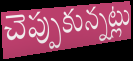
చెప్పుకున్నట్లు